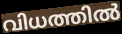
വിധത്തിൽ